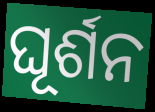
ଘୂର୍ଶନ